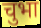
चुभा